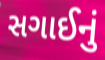
સગાઈનું